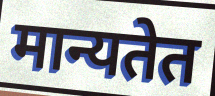
मान्यतेत